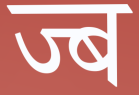
ज्ब